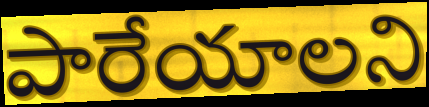
పారేయాలని